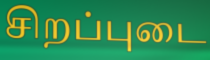
சிறப்புடை